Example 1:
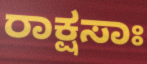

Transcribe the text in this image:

ರಾಕ್ಷಸಾಃ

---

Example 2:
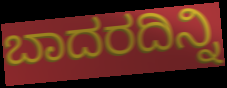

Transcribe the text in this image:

ಬಾದರದಿನ್ನಿ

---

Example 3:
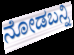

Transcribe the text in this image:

ನೋಡಬನ್ನಿ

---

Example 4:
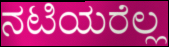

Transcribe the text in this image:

ನಟಿಯರೆಲ್ಲ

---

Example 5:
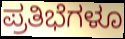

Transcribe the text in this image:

ಪ್ರತಿಭೆಗಳೂ